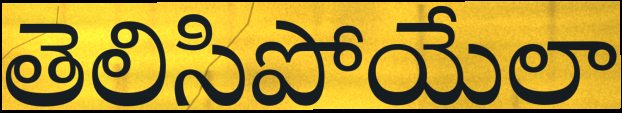
తెలిసిపోయేలా